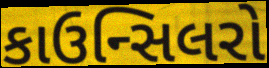
કાઉન્સિલરો